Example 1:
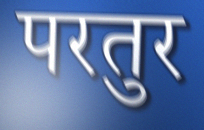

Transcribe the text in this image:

परतुर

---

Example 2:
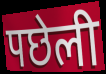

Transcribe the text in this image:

पछेली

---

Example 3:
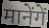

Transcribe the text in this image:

मानेंगें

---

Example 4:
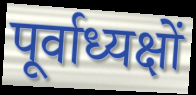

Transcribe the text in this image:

पूर्वाध्यक्षों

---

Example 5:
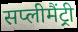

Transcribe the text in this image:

सप्लीमैंट्री